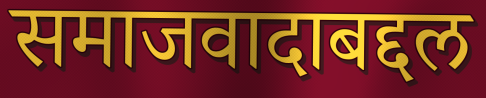
समाजवादाबद्दल